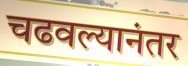
चढवल्यानंतर